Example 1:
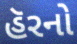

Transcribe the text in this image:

હૅરનો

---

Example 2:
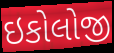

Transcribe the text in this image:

ઇકોલોજી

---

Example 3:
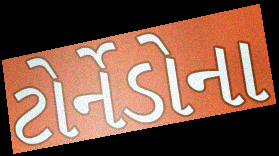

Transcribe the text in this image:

ટોર્નેડોના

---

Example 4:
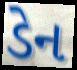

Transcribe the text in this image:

ડેન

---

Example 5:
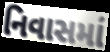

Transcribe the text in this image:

નિવાસમાં